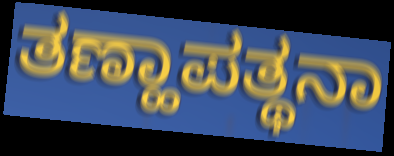
ತಣ್ಹಾಪತ್ಥನಾ